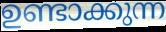
ഉണ്ടാക്കുന്ന